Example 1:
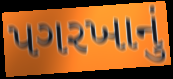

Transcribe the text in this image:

પગરખાનું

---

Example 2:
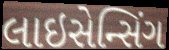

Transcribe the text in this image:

લાઇસેન્સિંગ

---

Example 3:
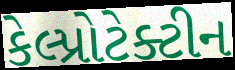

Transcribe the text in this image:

કેલ્પ્રોટેક્ટીન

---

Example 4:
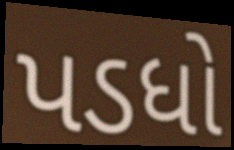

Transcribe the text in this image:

પડધો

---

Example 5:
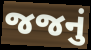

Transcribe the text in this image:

જજનું